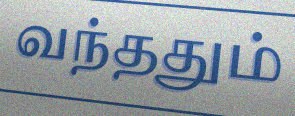
வந்ததும்